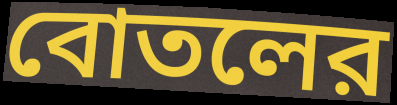
বোতলের